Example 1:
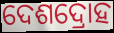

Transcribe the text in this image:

ଦେଶଦ୍ରୋହ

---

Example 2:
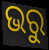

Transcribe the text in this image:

ଭରୁ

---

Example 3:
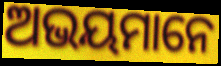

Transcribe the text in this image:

ଅଭୟମାନେ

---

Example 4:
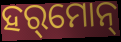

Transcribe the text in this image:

ହର୍‌ମୋନ୍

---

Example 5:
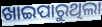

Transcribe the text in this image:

ଖାଇପାରୁଥିଲା